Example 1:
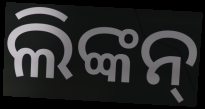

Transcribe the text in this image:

ଲିଙ୍କନ୍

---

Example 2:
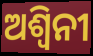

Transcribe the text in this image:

ଅଶ୍ୱିନୀ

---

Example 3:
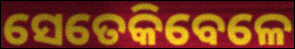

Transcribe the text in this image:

ସେତେକିବେଳେ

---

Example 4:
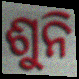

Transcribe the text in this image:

ଶୁନି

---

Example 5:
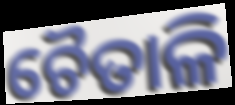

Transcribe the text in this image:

ଚୈତାଳି